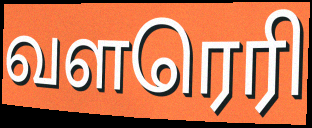
வளரெரி